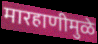
मारहाणीमुळे